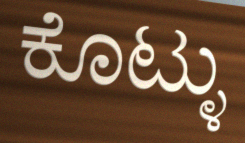
ಕೊಟ್ಳು